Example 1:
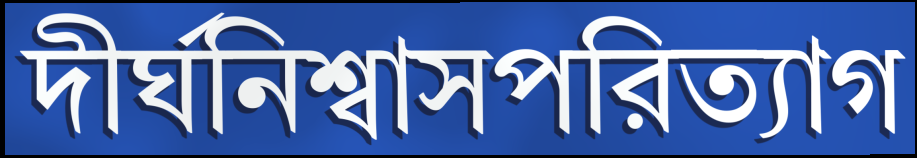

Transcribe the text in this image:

দীর্ঘনিশ্বাসপরিত্যাগ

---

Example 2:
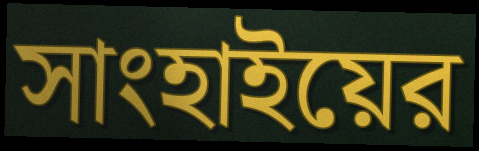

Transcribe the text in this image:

সাংহাইয়ের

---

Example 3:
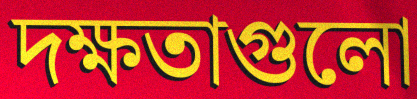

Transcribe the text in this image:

দক্ষতাগুলো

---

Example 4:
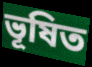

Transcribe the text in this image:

ভূষিত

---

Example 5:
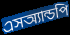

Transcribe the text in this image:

এসঅ্যান্ডপি